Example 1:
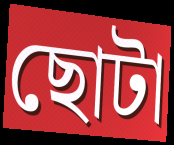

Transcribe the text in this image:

ছোটা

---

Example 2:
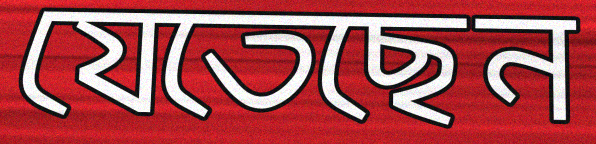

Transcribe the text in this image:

যেতেছেন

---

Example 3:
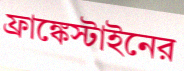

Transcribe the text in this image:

ফ্রাঙ্কেস্টাইনের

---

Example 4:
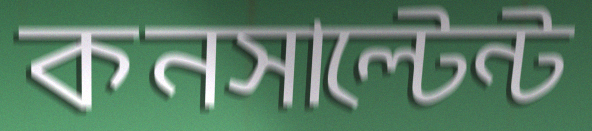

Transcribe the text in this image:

কনসাল্টেন্ট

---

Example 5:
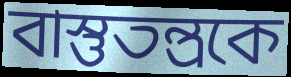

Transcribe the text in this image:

বাস্তুতন্ত্রকে